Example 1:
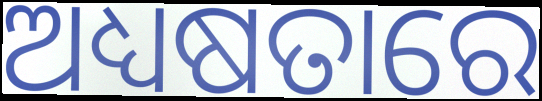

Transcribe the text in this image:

ଅଧ୍ୟଷତାରେ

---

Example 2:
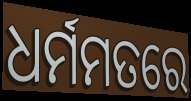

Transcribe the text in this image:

ଧର୍ମମତରେ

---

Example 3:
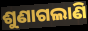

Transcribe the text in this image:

ଶୁଣାଗଲାଣି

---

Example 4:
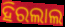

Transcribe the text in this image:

ହିରଲାଲ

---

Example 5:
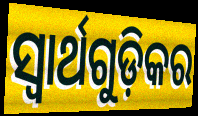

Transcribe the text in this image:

ସ୍ୱାର୍ଥଗୁଡ଼ିକର